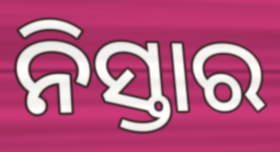
ନିସ୍ତାର